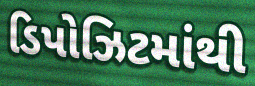
ડિપોઝિટમાંથી